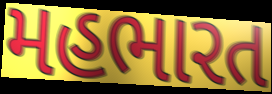
મહભારત